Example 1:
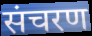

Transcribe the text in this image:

संचरण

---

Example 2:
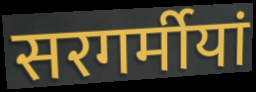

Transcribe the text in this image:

सरगर्मीयां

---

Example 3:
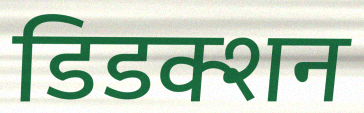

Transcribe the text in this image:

डिडक्शन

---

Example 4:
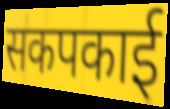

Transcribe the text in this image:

सकपकाई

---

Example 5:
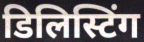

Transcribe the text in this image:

डिलिस्टिंग